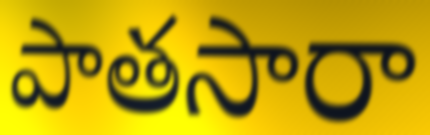
పాతసారా